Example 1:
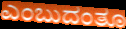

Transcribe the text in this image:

ಎಂಬುದಂತೂ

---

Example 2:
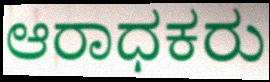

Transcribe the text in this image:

ಆರಾಧಕರು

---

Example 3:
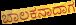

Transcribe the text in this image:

ಬಾಲಕನಾದಾಗ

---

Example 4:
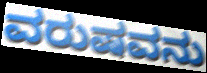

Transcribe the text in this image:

ವರುಷವನು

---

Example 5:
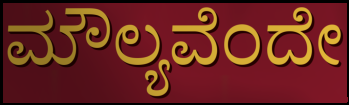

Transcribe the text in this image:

ಮೌಲ್ಯವೆಂದೇ